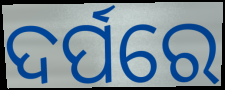
ଦର୍ପରେ